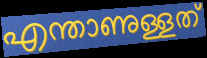
എന്താണുള്ളത്